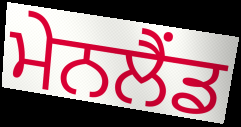
ਮੇਨਲੈਂਡ